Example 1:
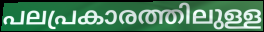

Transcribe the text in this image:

പലപ്രകാരത്തിലുള്ള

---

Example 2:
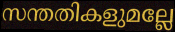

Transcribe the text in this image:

സന്തതികളുമല്ലേ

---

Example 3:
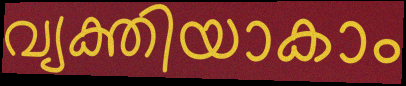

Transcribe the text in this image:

വ്യക്തിയാകാം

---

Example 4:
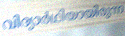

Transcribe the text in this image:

വിദ്യാർഥിയായിരുന്ന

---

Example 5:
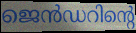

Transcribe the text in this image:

ജെൻഡറിന്റെ